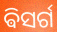
ଵିସର୍ଗ